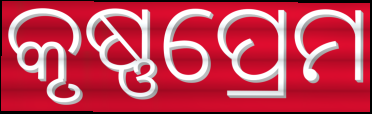
କୃଷ୍ଣପ୍ରେମ